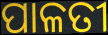
ପାଳତୀ